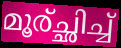
മൂര്ച്ഛിച്ച്